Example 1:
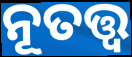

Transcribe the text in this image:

ନୂତତ୍ତ୍ଵ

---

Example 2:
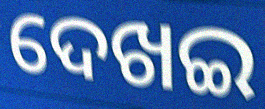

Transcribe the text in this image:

ଦେଖଇ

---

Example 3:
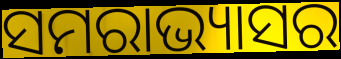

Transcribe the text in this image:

ସମରାଭ୍ୟାସର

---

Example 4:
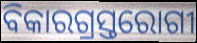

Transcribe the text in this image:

ବିକାରଗ୍ରସ୍ତରୋଗୀ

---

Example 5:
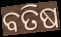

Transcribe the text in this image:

ବତିଷ